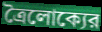
ত্রৈলোক্যের